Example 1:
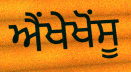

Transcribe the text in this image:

ਐਂਖੇਖੋਂਸੂ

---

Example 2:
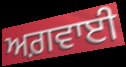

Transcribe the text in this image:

ਅਗ਼ਵਾਈ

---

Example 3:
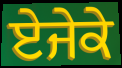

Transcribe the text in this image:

ਏਜੇਕੇ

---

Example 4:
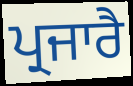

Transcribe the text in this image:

ਪ੍ਰਜਾਰੈ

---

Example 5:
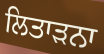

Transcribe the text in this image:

ਲਿਤਾੜਨਾ